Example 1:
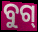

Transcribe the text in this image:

ବୁଗ୍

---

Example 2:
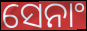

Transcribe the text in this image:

ସେନାଂ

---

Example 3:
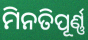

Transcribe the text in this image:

ମିନତିପୂର୍ଣ୍ଣ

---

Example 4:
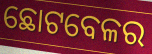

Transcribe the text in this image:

ଛୋଟବେଳର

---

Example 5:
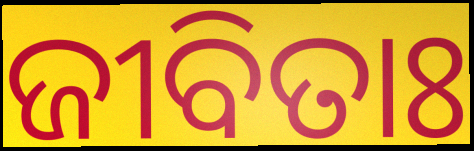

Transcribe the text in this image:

ଜୀବିତାଃ